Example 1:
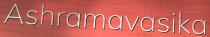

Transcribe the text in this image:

Ashramavasika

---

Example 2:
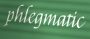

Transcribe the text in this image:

phlegmatic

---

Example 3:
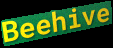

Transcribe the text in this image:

Beehive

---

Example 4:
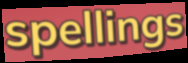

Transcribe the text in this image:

spellings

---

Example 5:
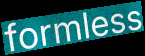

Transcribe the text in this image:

formless